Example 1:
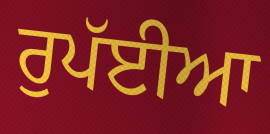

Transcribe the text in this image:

ਰੁਪੱਈਆ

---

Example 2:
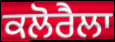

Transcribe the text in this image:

ਕਲੋਰੈਲਾ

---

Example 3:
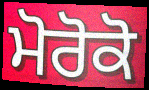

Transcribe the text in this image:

ਮੋਰੋਕੋ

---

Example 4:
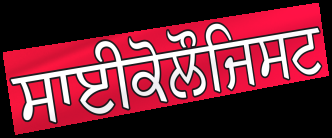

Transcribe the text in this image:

ਸਾਈਕੋਲੌਜਿਸਟ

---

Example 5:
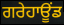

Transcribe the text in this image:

ਗਰੇਹਾਊਂਡ